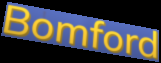
Bomford